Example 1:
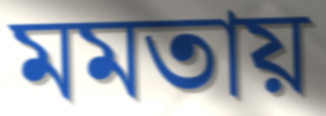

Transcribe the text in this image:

মমতায়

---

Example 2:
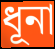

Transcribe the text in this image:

ধূনা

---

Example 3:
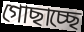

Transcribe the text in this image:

গোছাচ্ছে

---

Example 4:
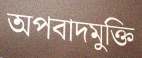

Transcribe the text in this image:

অপবাদমুক্তি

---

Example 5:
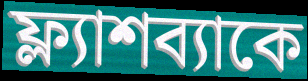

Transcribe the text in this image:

ফ্ল্যাশব্যাকে